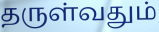
தருள்வதும்